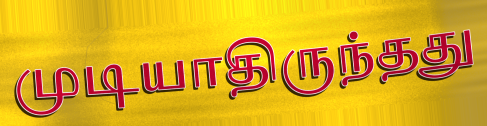
முடியாதிருந்தது